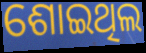
ଶୋଇଥିଲ